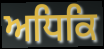
ਅਧਿਕਿ